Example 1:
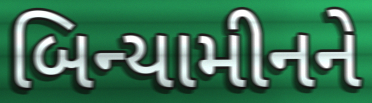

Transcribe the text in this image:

બિન્યામીનને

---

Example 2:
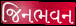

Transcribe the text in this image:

જિનભવન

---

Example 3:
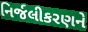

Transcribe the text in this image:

નિર્જલીકરણને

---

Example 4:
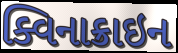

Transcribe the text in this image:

ક્વિનાક્રાઇન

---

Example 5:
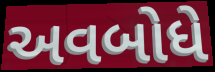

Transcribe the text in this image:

અવબોધે